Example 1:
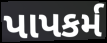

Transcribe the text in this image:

પાપકર્મ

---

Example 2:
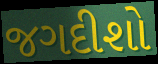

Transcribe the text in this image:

જગદીશો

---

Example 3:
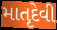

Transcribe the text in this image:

માતૃદેવી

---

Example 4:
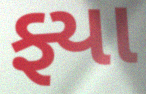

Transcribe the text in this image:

ફ્યા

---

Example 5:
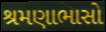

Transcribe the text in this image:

શ્રમણાભાસો